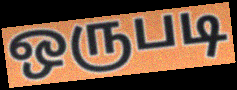
ஒருபடி